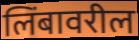
लिंबावरील